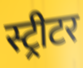
स्ट्रीटर